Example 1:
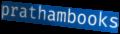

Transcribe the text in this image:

prathambooks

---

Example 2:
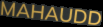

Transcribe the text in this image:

MAHAUDD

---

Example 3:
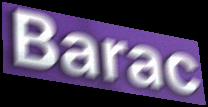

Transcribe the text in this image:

Barac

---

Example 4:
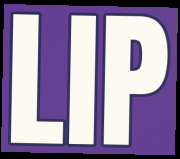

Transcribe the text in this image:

LIP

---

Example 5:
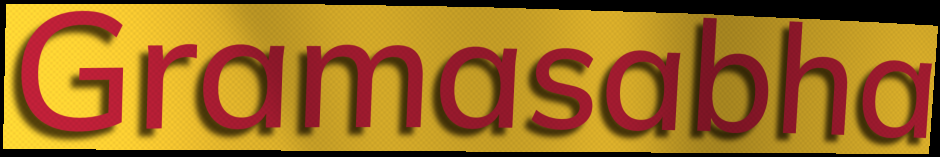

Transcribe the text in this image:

Gramasabha